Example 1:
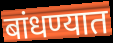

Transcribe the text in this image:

बांधण्‍यात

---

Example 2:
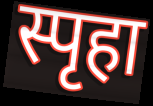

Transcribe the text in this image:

स्पृहा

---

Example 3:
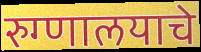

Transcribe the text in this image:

रुग्णालयाचे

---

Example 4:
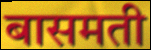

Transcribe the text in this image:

बासमती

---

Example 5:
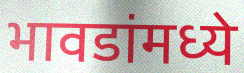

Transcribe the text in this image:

भावडांमध्ये